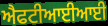
ਐਫਟੀਆਈਆਈ